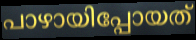
പാഴായിപ്പോയത്